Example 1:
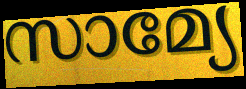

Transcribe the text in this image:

സാമ്യേ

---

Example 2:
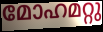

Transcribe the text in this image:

മോഹമറ്റു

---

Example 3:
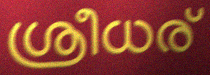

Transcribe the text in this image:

ശ്രീധര്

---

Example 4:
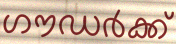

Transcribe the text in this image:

ഗൗഡർക്ക്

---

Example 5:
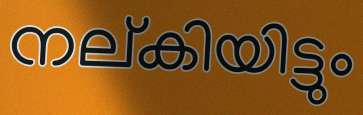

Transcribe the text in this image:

നല്കിയിട്ടും